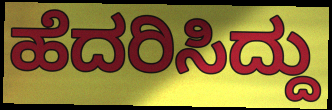
ಹೆದರಿಸಿದ್ದು